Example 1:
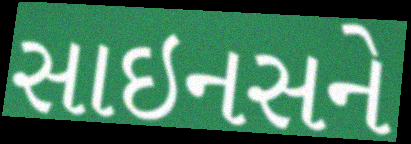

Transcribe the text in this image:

સાઇનસને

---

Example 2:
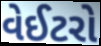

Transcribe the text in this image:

વેઈટરો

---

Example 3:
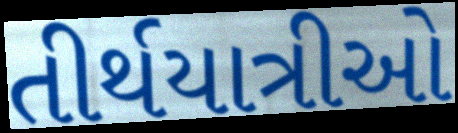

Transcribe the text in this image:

તીર્થયાત્રીઓ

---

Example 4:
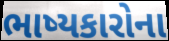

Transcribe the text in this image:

ભાષ્યકારોના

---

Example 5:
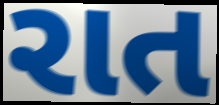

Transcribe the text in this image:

રાત